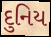
દુનિય